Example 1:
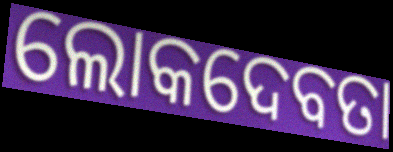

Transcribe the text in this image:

ଲୋକଦେବତା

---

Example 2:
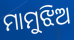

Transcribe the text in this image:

ମାମୁଝିଅ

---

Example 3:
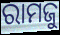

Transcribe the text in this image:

ରାମଜୁ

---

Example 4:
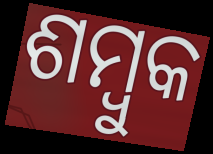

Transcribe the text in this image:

ଶମ୍ବୁକ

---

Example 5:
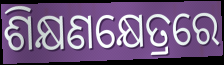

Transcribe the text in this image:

ଶିକ୍ଷଣକ୍ଷେତ୍ରରେ